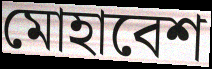
মোহাবেশ